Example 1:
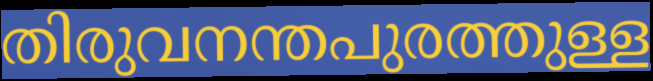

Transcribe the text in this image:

തിരുവനന്തപുരത്തുള്ള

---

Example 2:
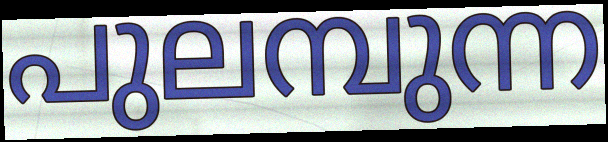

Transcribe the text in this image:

പുലമ്പുന്ന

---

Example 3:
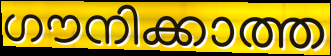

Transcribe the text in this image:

ഗൗനിക്കാത്ത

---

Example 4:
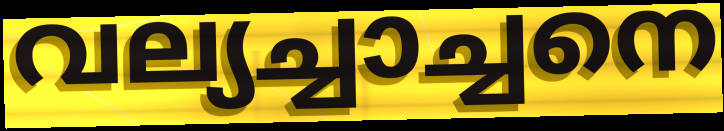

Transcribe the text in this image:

വല്യച്ചാച്ചനെ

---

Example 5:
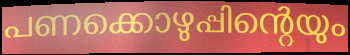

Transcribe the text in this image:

പണക്കൊഴുപ്പിന്റെയും